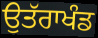
ਉਤੱਰਾਖੰਡ